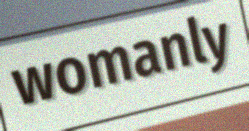
womanly